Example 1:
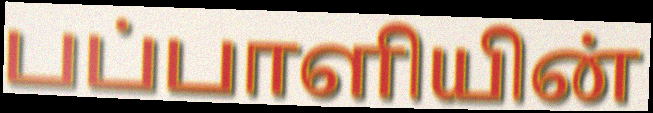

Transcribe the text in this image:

பப்பாளியின்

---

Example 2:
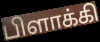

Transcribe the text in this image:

பிளாக்கி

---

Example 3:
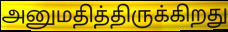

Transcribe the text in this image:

அனுமதித்திருக்கிறது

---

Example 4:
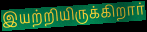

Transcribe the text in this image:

இயற்றியிருக்கிறார்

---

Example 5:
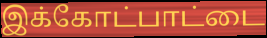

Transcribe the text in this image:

இக்கோட்பாட்டை